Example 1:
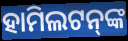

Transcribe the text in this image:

ହାମିଲଟନ୍‍ଙ୍କ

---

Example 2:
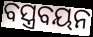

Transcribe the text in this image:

ବସ୍ତ୍ରବୟନ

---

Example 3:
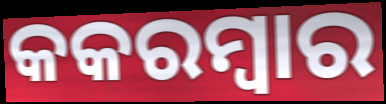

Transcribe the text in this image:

କକରମ୍ବାର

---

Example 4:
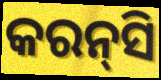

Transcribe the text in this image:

କରନ୍‌ସି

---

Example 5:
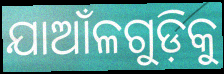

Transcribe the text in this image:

ଯାଆଁଳଗୁଡ଼ିକୁ